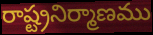
రాష్ట్రనిర్మాణము